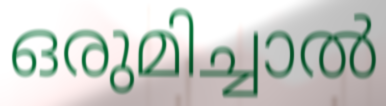
ഒരുമിച്ചാൽ